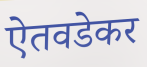
ऐतवडेकर